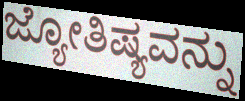
ಜ್ಯೋತಿಷ್ಯವನ್ನು